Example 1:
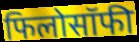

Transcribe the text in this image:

फिलोसॉफी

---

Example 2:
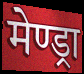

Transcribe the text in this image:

मेण्ड्रा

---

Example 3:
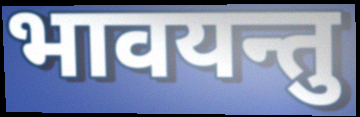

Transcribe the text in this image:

भावयन्तु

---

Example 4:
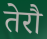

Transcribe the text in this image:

तेरौ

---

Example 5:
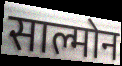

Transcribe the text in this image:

साल्मोन